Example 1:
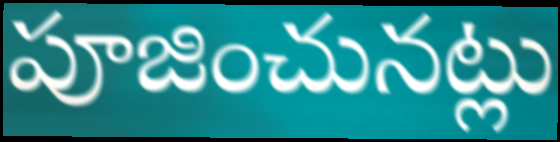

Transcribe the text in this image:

పూజించునట్లు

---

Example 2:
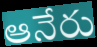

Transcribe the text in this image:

ఆనేరు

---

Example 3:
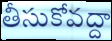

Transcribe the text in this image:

తీసుకోవద్దా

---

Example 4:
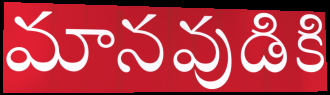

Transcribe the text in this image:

మానవుడికి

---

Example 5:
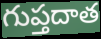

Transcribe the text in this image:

గుప్తదాత